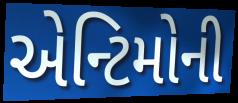
એન્ટિમોની